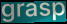
grasp